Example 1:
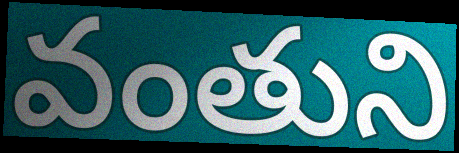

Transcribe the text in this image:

వంతుని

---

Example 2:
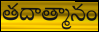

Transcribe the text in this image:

తదాత్మానం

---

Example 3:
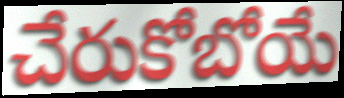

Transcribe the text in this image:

చేరుకోబోయే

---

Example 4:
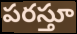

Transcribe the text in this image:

పరస్తూ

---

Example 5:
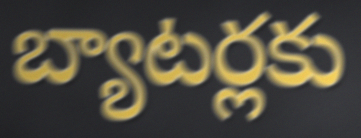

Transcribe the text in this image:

బ్యాటర్లకు